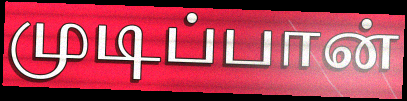
முடிப்பான்